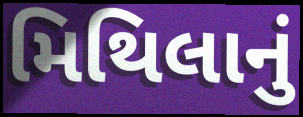
મિથિલાનું